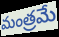
మంత్రమే